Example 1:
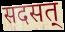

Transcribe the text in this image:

सदसत्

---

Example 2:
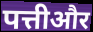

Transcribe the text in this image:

पत्तीऔर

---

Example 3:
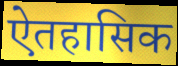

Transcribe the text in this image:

ऐतहासिक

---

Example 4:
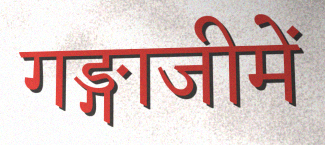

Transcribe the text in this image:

गङ्गाजीमें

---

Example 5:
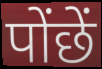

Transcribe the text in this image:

पोंछें